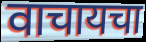
वाचायचा